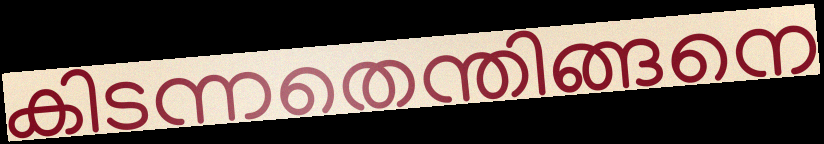
കിടന്നതെന്തിങ്ങനെ